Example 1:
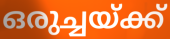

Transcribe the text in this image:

ഒരുച്ചയ്ക്ക്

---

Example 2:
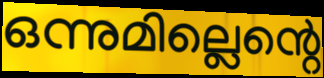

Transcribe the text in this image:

ഒന്നുമില്ലെന്റെ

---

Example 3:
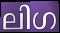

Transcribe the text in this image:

ലിഗ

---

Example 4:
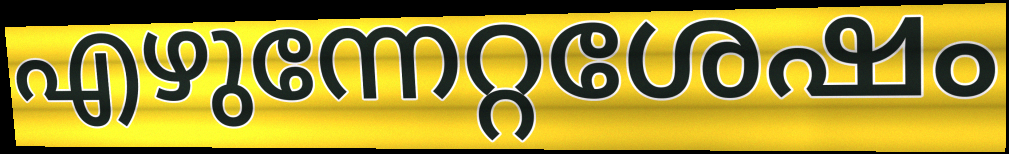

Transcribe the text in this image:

എഴുന്നേറ്റശേഷം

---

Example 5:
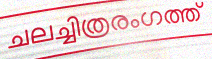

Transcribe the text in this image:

ചലച്ചിത്രരംഗത്ത്